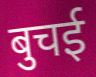
बुचई